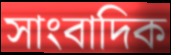
সাংবাদিক